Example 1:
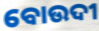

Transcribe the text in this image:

ବୋଉଦୀ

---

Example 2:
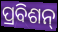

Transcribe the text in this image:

ପ୍ରବିଶନ୍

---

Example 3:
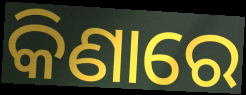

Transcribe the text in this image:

କିଣାରେ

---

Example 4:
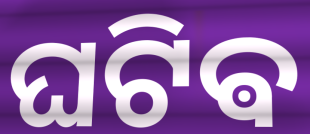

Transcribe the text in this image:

ଘଟିଵ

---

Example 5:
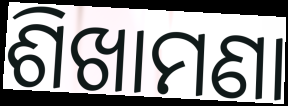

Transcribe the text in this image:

ଶିଖାମଣା